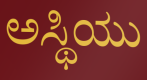
ಅಸ್ಥಿಯು